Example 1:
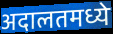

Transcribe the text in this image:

अदालतमध्ये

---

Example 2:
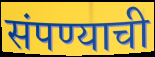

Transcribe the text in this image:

संपण्याची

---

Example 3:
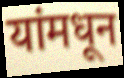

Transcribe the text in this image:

यांमधून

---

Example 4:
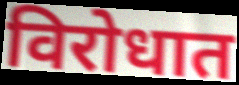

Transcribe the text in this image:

विरोधात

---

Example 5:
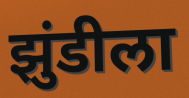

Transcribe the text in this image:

झुंडीला